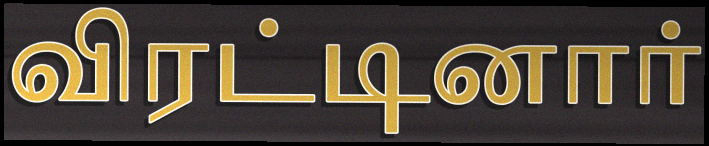
விரட்டினார்